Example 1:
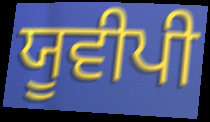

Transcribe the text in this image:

ਯੂਵੀਪੀ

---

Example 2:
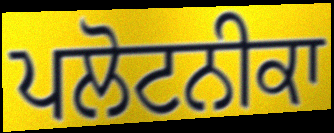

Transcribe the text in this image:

ਪਲੋਟਨੀਕਾ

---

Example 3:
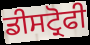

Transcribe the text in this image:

ਡੀਸਟ੍ਰੋਫੀ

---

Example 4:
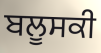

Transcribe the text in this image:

ਬਲੂਸਕੀ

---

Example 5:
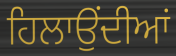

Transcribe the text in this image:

ਹਿਲਾਉਂਦੀਆਂ